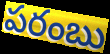
పరంబు